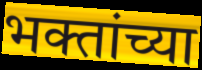
भक्तांच्या